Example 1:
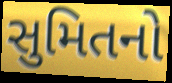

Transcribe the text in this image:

સુમિતનો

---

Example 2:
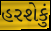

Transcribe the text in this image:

હરશેકું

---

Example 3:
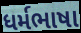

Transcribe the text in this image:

ધર્મભાષા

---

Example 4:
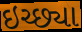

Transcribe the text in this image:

ઇચ્છ્યા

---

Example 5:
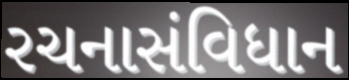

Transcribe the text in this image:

રચનાસંવિધાન